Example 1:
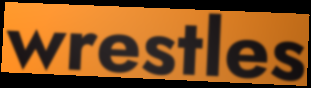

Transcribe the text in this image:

wrestles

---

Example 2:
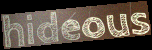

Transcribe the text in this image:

hideous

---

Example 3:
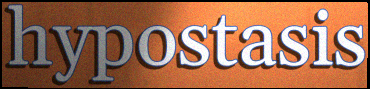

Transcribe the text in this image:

hypostasis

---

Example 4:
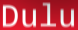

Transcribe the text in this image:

Dulu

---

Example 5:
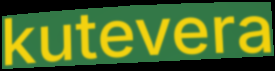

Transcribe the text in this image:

kutevera